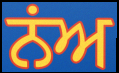
ਨਂਅ